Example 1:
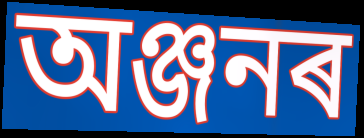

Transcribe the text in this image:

অঞ্জনৰ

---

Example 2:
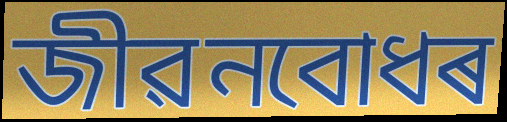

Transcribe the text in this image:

জীৱনবোধৰ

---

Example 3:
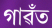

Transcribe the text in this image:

গাৱঁত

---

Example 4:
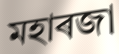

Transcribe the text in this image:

মহাৰজা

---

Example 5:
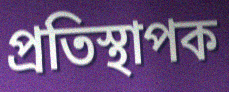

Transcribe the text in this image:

প্ৰতিস্থাপক